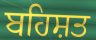
ਬਹਿਸ਼ਤ